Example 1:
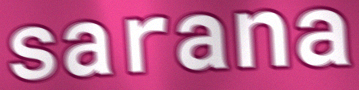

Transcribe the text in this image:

sarana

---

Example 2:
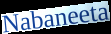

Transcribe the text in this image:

Nabaneeta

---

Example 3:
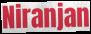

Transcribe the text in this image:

Niranjan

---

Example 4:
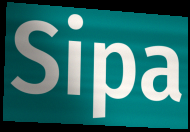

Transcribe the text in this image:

Sipa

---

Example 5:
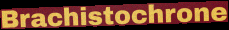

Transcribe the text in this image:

Brachistochrone